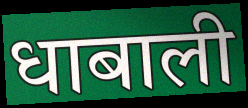
धाबाली